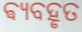
ଵ୍ୟବହୃତ